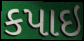
કપાઇ